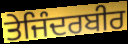
ਤੇਜਿੰਦਰਬੀਰ